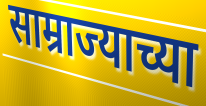
साम्राज्याच्या